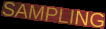
SAMPLING